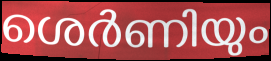
ശെർണിയും